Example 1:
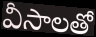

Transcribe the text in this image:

వీసాలతో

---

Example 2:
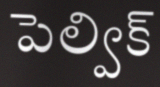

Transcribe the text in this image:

పెల్విక్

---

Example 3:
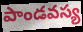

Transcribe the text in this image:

పాండవస్య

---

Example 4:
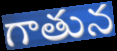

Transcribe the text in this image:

గాతున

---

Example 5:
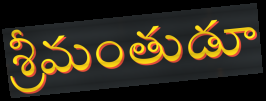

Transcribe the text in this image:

శ్రీమంతుడూ